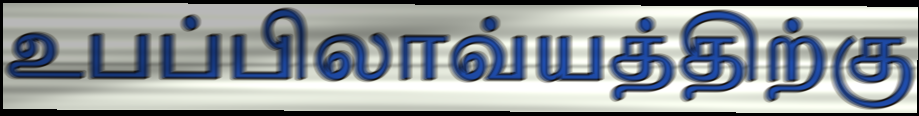
உபப்பிலாவ்யத்திற்கு